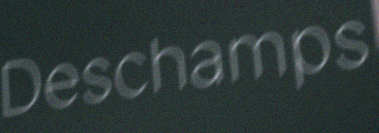
Deschamps